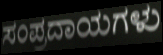
ಸಂಪ್ರದಾಯಗಳು